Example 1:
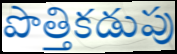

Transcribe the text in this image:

పొత్తికడుపు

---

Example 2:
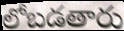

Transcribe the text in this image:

లోబడతారు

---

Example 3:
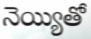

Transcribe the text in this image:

నెయ్యితో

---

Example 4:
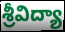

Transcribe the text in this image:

శ్రీవిద్యా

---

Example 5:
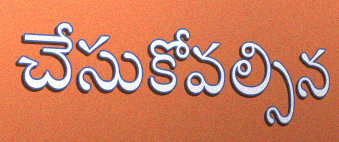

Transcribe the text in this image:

చేసుకోవల్సిన